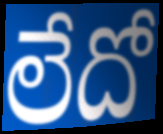
లేదో